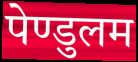
पेण्डुलम